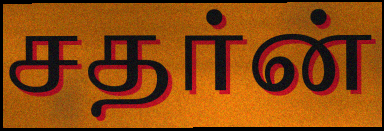
சதர்ன்